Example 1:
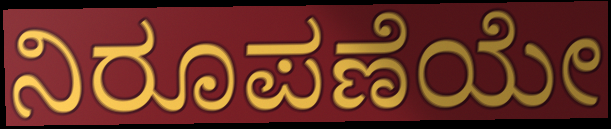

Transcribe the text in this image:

ನಿರೂಪಣೆಯೇ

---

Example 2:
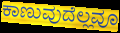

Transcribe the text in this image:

ಕಾಣುವುದೆಲ್ಲವೂ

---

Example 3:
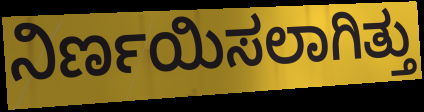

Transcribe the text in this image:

ನಿರ್ಣಯಿಸಲಾಗಿತ್ತು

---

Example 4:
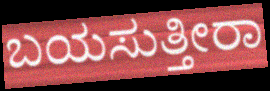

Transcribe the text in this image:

ಬಯಸುತ್ತೀರಾ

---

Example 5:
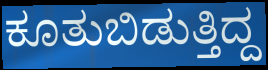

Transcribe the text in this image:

ಕೂತುಬಿಡುತ್ತಿದ್ದ